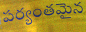
పర్యంతమైన